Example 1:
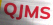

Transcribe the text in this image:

QJMS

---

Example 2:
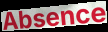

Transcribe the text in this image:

Absence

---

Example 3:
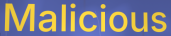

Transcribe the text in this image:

Malicious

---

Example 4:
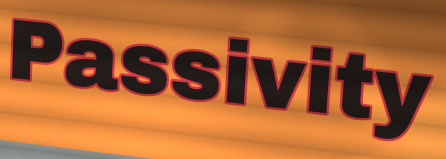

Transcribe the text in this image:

Passivity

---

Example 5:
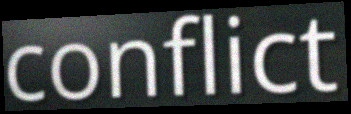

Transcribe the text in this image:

conflict